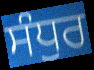
ਸੰਧੁਰ